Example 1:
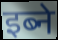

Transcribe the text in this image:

इब्ने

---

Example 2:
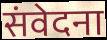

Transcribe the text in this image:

संवेदना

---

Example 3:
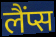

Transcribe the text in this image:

लैंप्स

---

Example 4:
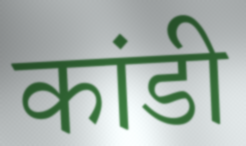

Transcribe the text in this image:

कांडी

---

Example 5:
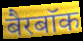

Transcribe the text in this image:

बैरबॉक